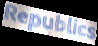
Republics